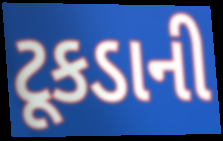
ટૂકડાની